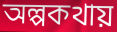
অল্পকথায়